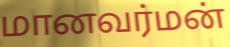
மானவர்மன்